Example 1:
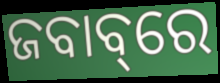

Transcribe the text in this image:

ଜବାବ୍‌ରେ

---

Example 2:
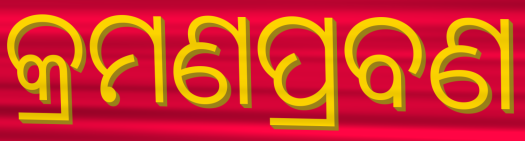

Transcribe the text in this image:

କ୍ରମଣପ୍ରବଣ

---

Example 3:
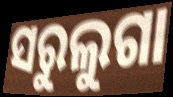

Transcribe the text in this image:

ସରୁଲୁଗା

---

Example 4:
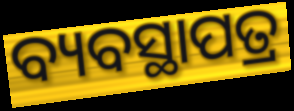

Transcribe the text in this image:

ବ୍ୟବସ୍ଥାପତ୍ର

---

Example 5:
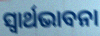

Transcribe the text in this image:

ସ୍ଵାର୍ଥଭାବନା